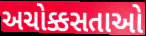
અચોક્કસતાઓ